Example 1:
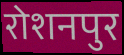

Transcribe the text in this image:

रोशनपुर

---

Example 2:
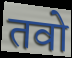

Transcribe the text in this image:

तवो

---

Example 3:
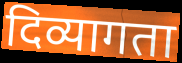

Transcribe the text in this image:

दिव्यागता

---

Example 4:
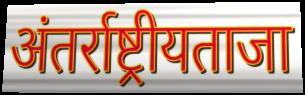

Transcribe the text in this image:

अंतर्राष्ट्रीयताजा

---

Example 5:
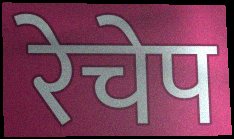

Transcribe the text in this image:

रेचेप